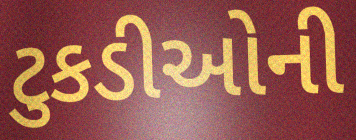
ટુકડીઓની